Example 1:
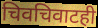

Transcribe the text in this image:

चिवचिवाटही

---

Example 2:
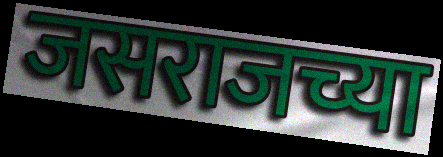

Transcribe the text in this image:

जसराजच्या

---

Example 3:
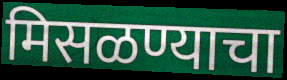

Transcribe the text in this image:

मिसळण्याचा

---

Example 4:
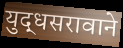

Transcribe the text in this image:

युद्धसरावाने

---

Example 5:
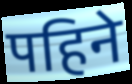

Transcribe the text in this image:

पहिने